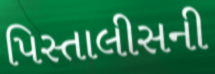
પિસ્તાલીસની